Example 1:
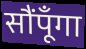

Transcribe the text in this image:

सौंपूँगा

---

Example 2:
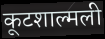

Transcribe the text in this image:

कूटशाल्मली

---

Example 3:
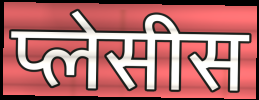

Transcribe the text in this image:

प्लेसीस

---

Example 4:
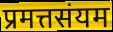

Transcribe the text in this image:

प्रमत्तसंयम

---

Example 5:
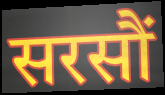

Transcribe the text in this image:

सरसौं